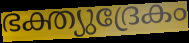
ഭക്ത്യുദ്രേകം